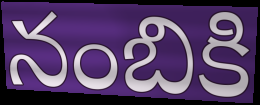
నంబికి